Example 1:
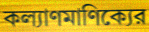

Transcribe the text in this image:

কল্যাণমাণিক্যের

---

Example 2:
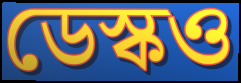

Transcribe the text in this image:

ডেস্কও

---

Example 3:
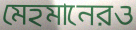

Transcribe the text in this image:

মেহমানেরও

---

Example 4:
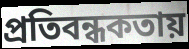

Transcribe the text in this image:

প্রতিবন্ধকতায়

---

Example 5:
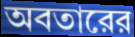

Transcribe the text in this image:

অবতারের